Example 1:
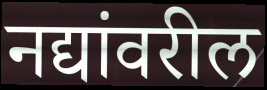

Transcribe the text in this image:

नद्यांवरील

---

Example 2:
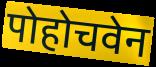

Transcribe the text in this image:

पोहोचवेन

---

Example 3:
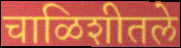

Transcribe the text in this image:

चाळिशीतले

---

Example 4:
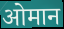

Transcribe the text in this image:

ओमान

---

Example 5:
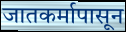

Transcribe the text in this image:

जातकर्मापासून